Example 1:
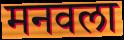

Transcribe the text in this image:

मनवला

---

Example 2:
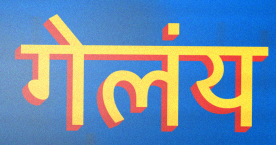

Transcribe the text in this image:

गेलंय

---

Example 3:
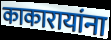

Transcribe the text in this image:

काकारायांना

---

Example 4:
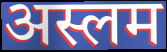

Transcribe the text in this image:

अस्लम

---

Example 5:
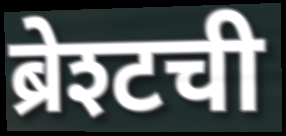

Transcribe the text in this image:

ब्रेश्टची